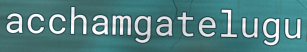
acchamgatelugu